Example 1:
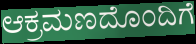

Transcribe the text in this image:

ಆಕ್ರಮಣದೊಂದಿಗೆ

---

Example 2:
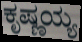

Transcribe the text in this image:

ಕೃಷ್ಣಯ್ಯ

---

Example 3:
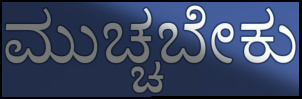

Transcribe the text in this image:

ಮುಚ್ಚಬೇಕು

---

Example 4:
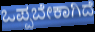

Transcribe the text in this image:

ಒಪ್ಪಬೇಕಾಗಿದೆ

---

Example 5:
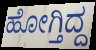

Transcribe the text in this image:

ಹೋಗ್ತಿದ್ದ